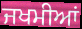
ਜਖਮੀਆਂ